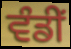
ਵੰਡੀਂ